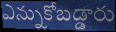
ఎన్నుకోబడ్డారు